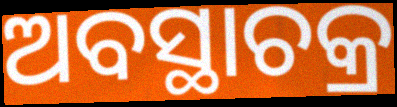
ଅବସ୍ଥାଚକ୍ର